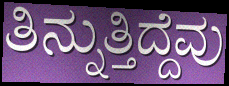
ತಿನ್ನುತ್ತಿದ್ದೆವು